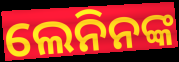
ଲେନିନଙ୍କ